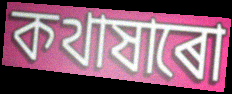
কথাষাৰো